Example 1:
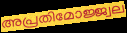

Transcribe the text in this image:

അപ്രതിമോജ്ജ്വല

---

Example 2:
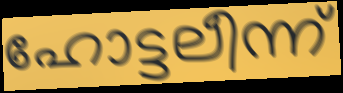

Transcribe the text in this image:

ഹോട്ടലീന്ന്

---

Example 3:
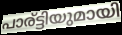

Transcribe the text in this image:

പാര്ട്ടിയുമായി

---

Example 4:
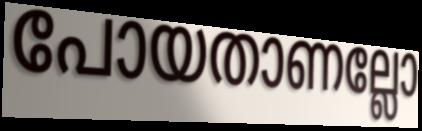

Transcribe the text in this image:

പോയതാണല്ലോ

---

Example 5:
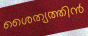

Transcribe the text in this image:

ശൈത്യത്തിൻ